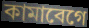
কামাবেগে